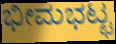
ಭೀಮಭಟ್ಟ